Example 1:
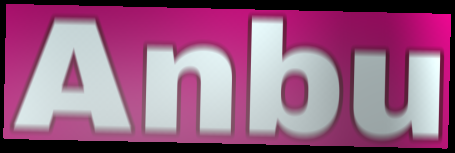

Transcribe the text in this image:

Anbu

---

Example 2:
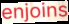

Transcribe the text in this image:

enjoins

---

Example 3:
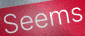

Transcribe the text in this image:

Seems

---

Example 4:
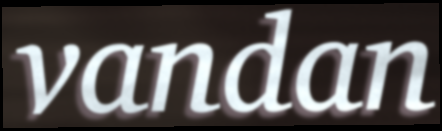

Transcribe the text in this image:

vandan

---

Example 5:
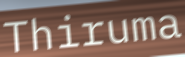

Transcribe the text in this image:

Thiruma